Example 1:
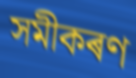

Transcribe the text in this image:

সমীকৰণ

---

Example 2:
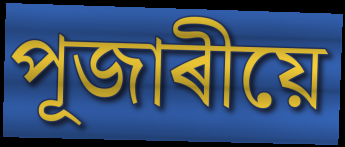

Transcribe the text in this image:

পূজাৰীয়ে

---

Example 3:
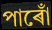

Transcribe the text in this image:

পাৰোঁ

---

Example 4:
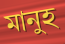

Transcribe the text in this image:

মানুহ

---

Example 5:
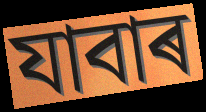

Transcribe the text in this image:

যাবাৰ